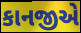
કાનજીએ